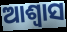
ଆଶ୍ୱାସ